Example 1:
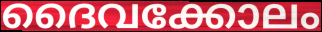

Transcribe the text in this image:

ദൈവക്കോലം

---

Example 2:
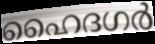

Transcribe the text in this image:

ഹൈദഗർ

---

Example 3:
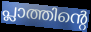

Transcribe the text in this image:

പ്ലാത്തിന്റെ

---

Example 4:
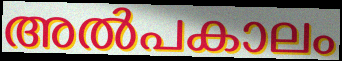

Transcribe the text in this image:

അൽപകാലം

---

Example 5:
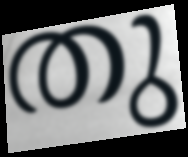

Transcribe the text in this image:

തു